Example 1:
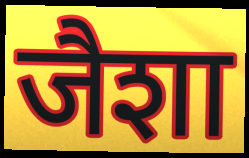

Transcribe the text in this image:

जैशा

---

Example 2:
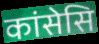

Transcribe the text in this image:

कांसेसि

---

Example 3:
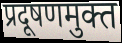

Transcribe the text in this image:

प्रदूषणमुक्त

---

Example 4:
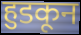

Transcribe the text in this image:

हुडकून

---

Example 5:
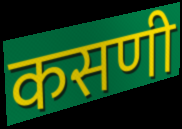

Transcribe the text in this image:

कसणी